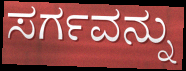
ಸರ್ಗವನ್ನು